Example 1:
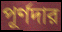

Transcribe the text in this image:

পূর্ণদার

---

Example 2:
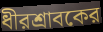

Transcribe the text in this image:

ধীরশ্রাবকের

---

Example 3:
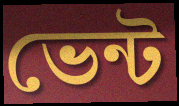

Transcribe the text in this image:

ভেন্ট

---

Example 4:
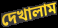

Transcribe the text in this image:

দেখালাম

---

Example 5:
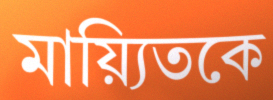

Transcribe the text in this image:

মায়্যিতকে